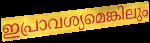
ഇപ്രാവശ്യമെങ്കിലും